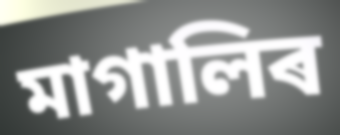
মাগালিৰ